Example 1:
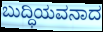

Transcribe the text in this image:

ಬುದ್ಧಿಯವನಾದ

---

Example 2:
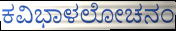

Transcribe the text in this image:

ಕವಿಭಾಳಲೋಚನಂ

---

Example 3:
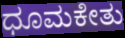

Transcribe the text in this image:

ಧೂಮಕೇತು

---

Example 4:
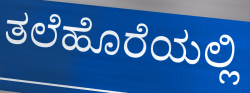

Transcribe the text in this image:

ತಲೆಹೊರೆಯಲ್ಲಿ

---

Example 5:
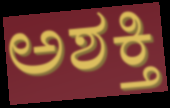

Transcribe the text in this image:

ಅಶಕ್ತಿ